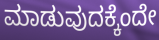
ಮಾಡುವುದಕ್ಕೆಂದೇ